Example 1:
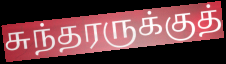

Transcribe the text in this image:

சுந்தரருக்குத்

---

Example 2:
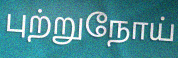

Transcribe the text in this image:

புற்றுநோய்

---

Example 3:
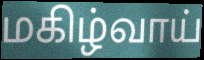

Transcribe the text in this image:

மகிழ்வாய்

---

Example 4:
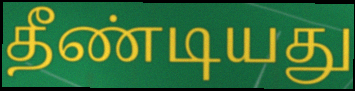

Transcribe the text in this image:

தீண்டியது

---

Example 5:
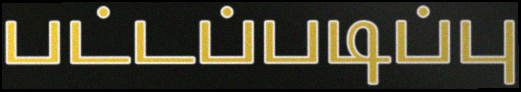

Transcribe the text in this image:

பட்டப்படிப்பு